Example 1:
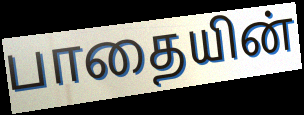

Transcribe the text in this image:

பாதையின்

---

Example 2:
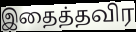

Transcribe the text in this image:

இதைத்தவிர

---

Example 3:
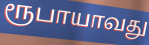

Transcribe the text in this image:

ரூபாயாவது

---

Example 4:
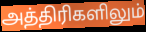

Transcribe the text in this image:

அத்திரிகளிலும்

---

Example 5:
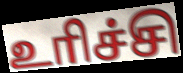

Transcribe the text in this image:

உரிச்சி